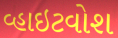
વ્હાઇટવોશ